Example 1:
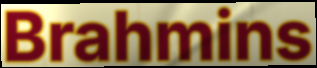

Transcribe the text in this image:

Brahmins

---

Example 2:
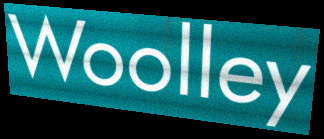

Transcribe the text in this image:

Woolley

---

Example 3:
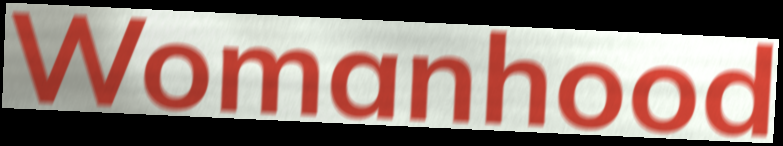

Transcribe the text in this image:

Womanhood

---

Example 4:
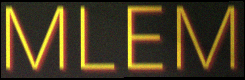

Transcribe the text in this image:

MLEM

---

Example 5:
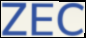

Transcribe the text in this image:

ZEC